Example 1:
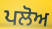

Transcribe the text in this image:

ਪਲੋਅ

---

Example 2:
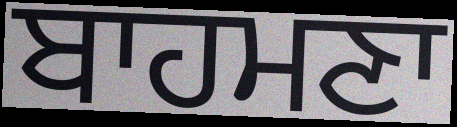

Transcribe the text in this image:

ਬਾਹਮਣਾ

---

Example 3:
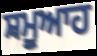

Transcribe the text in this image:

ਸ਼ਮੂਆਹ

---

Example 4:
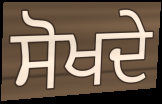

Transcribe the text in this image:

ਸੋਖਦੇ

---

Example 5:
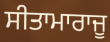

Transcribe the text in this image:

ਸੀਤਾਮਾਰਾਜੂ